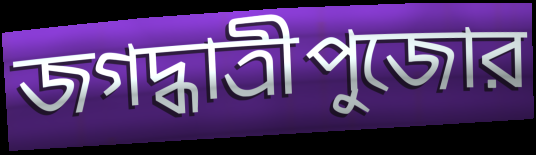
জগদ্ধাত্রীপুজোর